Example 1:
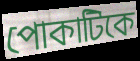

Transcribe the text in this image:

পোকাটিকে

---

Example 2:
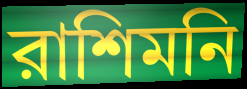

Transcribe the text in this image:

রাশিমনি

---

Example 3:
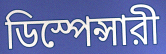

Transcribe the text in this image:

ডিস্পেন্সারী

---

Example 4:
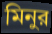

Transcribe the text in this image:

মিনুর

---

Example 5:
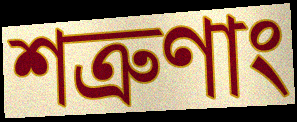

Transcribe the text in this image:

শত্রুণাং